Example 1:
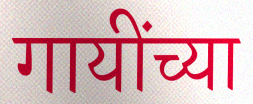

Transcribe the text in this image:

गायींच्या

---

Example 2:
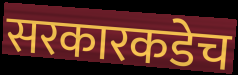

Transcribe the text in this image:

सरकारकडेच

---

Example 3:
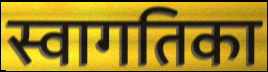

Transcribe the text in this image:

स्वागतिका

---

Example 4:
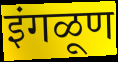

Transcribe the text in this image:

इंगळूण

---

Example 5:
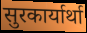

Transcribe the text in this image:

सुरकार्यार्था